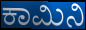
ಕಾಮಿನಿ